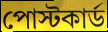
পোস্টকার্ড